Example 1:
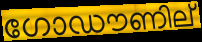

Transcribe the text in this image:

ഗോഡൗണില്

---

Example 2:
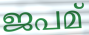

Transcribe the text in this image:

ജപമ്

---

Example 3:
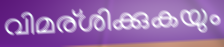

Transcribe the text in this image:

വിമര്ശിക്കുകയും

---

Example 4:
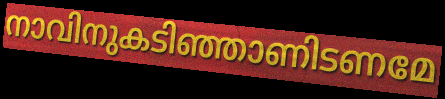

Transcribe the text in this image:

നാവിനുകടിഞ്ഞാണിടണമേ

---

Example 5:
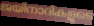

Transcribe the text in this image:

ജയിനാദികളുടെ